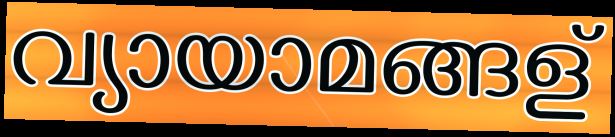
വ്യായാമങ്ങള്